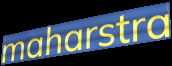
maharstra